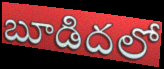
బూడిదలో